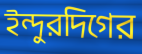
ইন্দুরদিগের